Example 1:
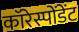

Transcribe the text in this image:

कॉरेस्पोंडेंट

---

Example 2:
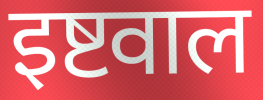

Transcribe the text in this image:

इष्टवाल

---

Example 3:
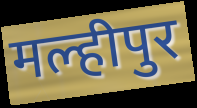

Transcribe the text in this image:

मल्हीपुर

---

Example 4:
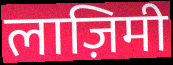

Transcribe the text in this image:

लाज़िमी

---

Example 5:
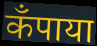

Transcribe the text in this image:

कँपाया